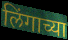
लिंगाच्या